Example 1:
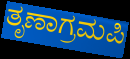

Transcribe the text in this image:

ತೃಣಾಗ್ರಮಪಿ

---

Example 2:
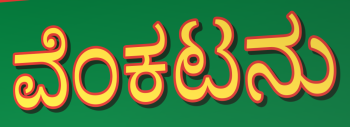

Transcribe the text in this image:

ವೆಂಕಟನು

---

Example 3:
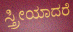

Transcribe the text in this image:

ಸ್ತ್ರೀಯಾದರೆ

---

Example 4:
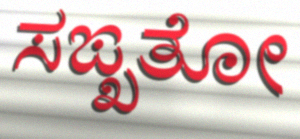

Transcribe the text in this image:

ಸಙ್ಖತೋ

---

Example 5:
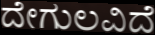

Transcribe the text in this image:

ದೇಗುಲವಿದೆ